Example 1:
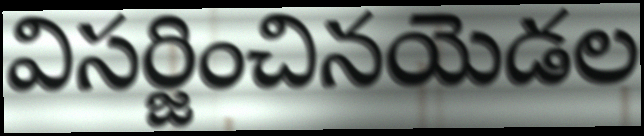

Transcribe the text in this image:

విసర్జించినయెడల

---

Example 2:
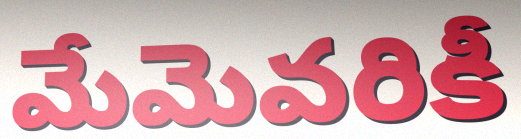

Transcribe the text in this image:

మేమెవరికీ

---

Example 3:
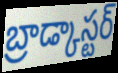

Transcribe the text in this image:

బ్రాడ్కాస్టర్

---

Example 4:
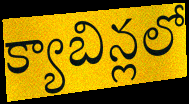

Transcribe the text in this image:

క్యాబిన్లలో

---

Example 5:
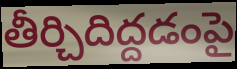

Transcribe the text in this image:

తీర్చిదిద్దడంపై